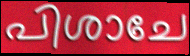
പിശാചേ